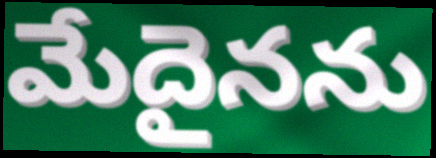
మేదైనను